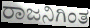
ರಾಜನಿಗಿಂತ